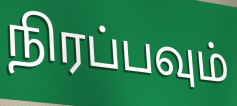
நிரப்பவும்